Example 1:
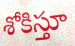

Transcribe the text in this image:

శోకిస్తూ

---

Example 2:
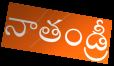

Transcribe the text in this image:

నాతండ్రీ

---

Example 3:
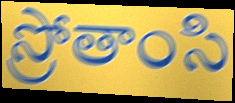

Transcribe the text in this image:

స్రోతాంసి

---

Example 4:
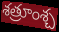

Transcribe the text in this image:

శత్రూంశ్చ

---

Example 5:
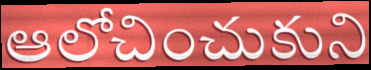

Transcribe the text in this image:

ఆలోచించుకుని